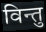
विन्तु